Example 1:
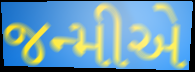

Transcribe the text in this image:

જન્મીએ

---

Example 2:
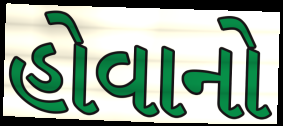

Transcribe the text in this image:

હોવાનો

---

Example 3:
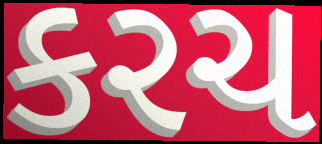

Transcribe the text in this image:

કરચ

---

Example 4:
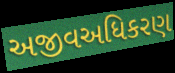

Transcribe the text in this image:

અજીવઅધિકરણ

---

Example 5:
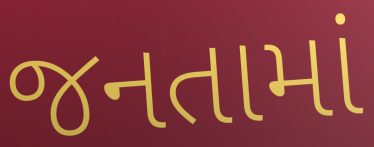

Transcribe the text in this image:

જનતામાં